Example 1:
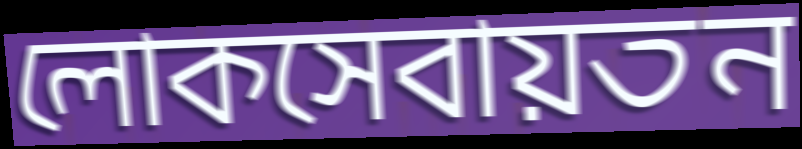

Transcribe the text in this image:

লোকসেবায়তন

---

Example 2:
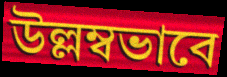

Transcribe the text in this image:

উল্লম্বভাবে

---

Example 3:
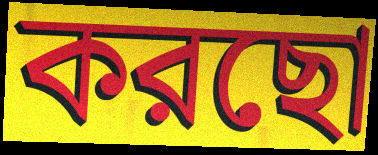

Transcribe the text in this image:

করছো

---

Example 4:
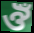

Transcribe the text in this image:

ঔঁ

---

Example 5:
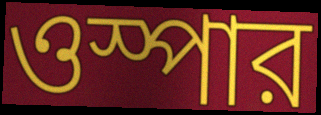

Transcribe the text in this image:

ওস্পার